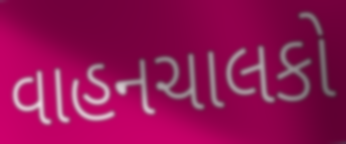
વાહનચાલકો